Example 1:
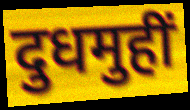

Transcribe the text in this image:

दुधमुहीं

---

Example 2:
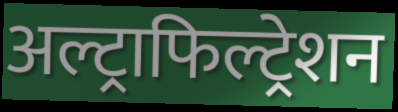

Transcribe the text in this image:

अल्ट्राफिल्ट्रेशन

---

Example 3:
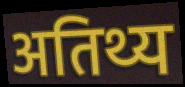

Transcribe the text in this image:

अतिथ्य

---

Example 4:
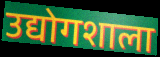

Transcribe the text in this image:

उद्योगशाला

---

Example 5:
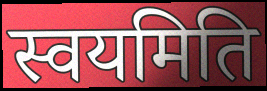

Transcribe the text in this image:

स्वयमिति